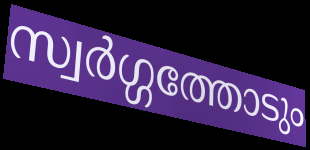
സ്വർഗ്ഗത്തോടും